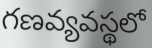
గణవ్యవస్థలో